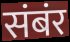
संबंर